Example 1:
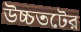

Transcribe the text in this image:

উচ্চতটের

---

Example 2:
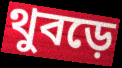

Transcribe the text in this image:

থুবড়ে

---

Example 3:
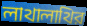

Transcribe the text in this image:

লাথালাথির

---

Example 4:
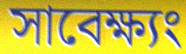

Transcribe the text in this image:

সাবেক্ষ্যং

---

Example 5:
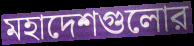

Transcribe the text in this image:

মহাদেশগুলোর